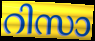
റിസാ